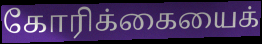
கோரிக்கையைக்